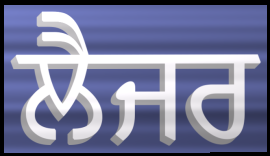
ਲੈਜਰ